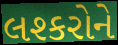
લશ્કરોને